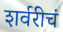
शर्वरीचं